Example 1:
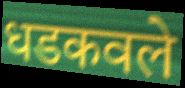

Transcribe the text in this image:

धडकवले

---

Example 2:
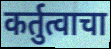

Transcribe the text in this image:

कर्तुत्वाचा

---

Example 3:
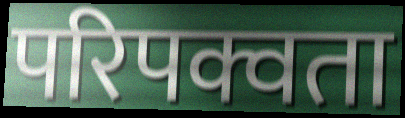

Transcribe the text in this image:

परिपक्‍वता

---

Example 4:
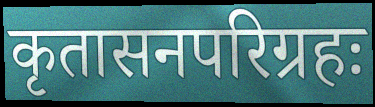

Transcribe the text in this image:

कृतासनपरिग्रहः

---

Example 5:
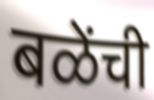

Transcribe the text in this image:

बळेंची